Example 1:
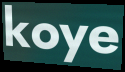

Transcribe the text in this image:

koye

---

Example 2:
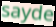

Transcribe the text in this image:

sayde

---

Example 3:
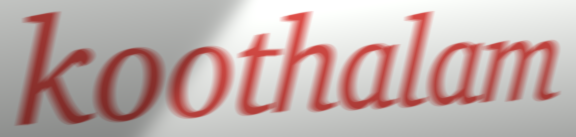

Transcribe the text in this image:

koothalam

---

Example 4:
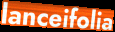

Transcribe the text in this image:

lanceifolia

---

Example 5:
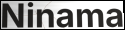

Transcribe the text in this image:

Ninama